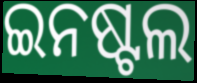
ଇନଷ୍ଟଲ